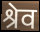
श्रेव